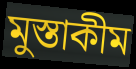
মুস্তাকীম